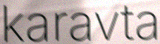
karavta